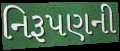
નિરૂપણની